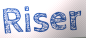
Riser